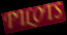
PILOTS